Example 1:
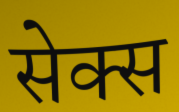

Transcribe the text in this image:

सेक्स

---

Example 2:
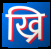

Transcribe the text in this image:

ख्रि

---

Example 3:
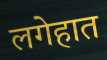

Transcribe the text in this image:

लगेहात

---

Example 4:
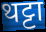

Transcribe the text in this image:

थट्टा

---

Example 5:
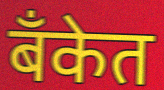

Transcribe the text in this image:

बॅंकेत